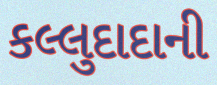
કલ્લુદાદાની